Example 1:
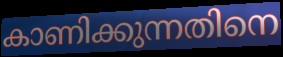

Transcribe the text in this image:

കാണിക്കുന്നതിനെ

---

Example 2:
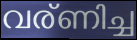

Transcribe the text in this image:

വര്ണിച്ച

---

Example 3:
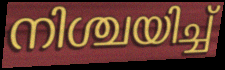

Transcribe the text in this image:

നിശ്ചയിച്ച്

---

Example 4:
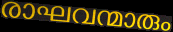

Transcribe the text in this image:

രാഘവന്മാരും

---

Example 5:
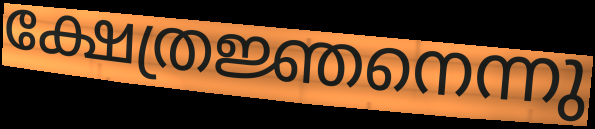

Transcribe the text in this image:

ക്ഷേത്രജ്ഞനെന്നു